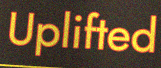
Uplifted